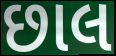
છાલ